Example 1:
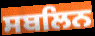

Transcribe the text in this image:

ਸਬਲਿਨ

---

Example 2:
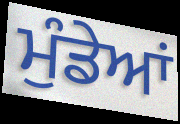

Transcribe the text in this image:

ਮੁੰਡੇਆਂ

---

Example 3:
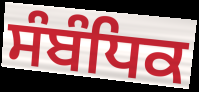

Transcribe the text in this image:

ਸੰਬੰਧਿਕ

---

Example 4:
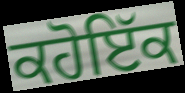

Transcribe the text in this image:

ਕਹੋਇੱਕ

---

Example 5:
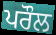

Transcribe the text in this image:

ਪਰੌਲ